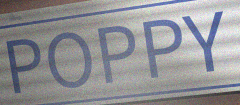
POPPY